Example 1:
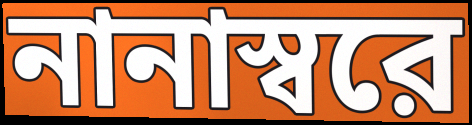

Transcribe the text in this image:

নানাস্বরে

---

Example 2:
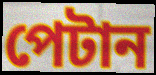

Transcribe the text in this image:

পেটান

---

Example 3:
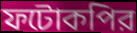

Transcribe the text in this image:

ফটোকপির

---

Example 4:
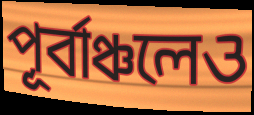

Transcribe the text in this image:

পূর্বাঞ্চলেও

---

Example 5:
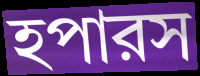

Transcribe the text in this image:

হপারস